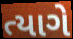
ત્યાગે